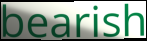
bearish